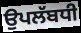
ਉਪਲੱਬਧੀ